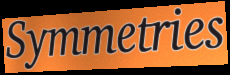
Symmetries